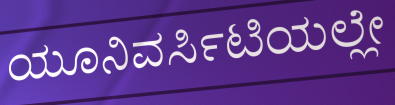
ಯೂನಿವರ್ಸಿಟಿಯಲ್ಲೇ